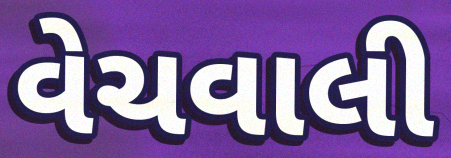
વેચવાલી